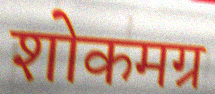
शोकमग्र